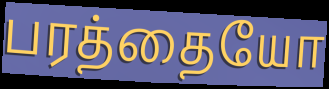
பரத்தையோ